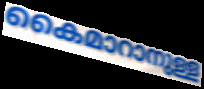
കൈമാറാനുള്ള